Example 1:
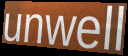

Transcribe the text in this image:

unwell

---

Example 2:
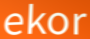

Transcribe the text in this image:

ekor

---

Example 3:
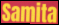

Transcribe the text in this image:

Samita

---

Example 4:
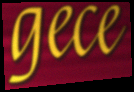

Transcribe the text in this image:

gece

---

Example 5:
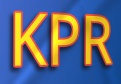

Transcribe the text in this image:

KPR